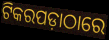
ଟିକରପଡ଼ାଠାରେ